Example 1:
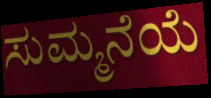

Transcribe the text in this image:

ಸುಮ್ಮನೆಯೆ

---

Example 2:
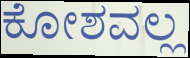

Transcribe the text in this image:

ಕೋಶವಲ್ಲ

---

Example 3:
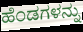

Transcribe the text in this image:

ಹೆಂಡಗಳನ್ನು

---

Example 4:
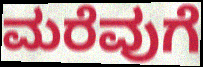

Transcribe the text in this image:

ಮರೆವುಗೆ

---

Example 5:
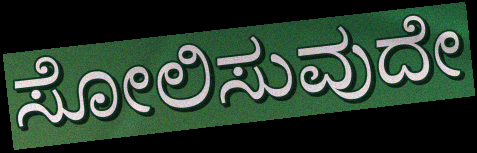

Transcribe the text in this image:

ಸೋಲಿಸುವುದೇ